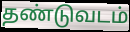
தண்டுவடம்